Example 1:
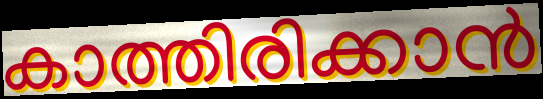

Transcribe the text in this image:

കാത്തിരിക്കാൻ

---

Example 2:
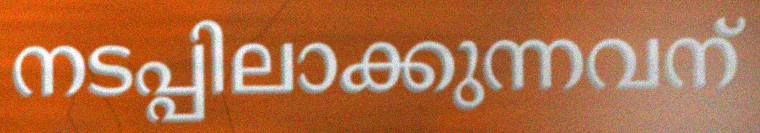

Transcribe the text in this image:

നടപ്പിലാക്കുന്നവന്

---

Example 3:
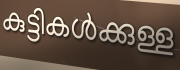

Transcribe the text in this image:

കുട്ടികൾക്കുള്ള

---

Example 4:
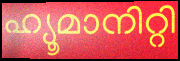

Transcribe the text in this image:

ഹ്യൂമാനിറ്റി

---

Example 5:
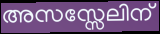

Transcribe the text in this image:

അസസ്സേലിന്